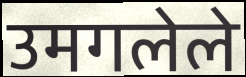
उमगलेले